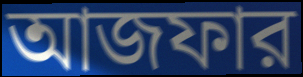
আজফার